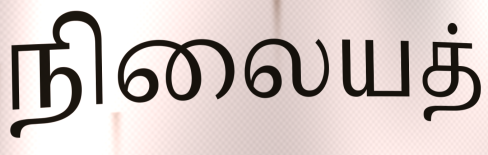
நிலையத்